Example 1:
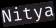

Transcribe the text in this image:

Nitya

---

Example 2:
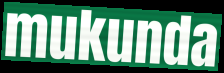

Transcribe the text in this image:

mukunda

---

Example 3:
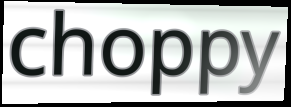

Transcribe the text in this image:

choppy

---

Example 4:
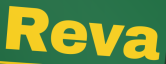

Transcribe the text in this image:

Reva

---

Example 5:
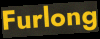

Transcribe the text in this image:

Furlong